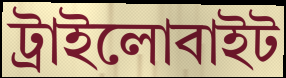
ট্রাইলোবাইট